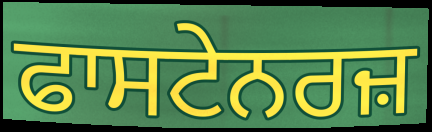
ਫਾਸਟੇਨਰਜ਼